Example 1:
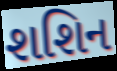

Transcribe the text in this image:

શશિન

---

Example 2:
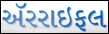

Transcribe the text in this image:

ઍરરાઇફલ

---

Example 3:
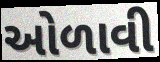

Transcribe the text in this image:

ઓળાવી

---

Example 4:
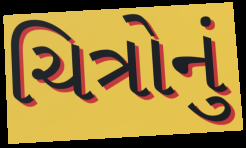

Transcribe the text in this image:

ચિત્રોનું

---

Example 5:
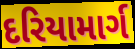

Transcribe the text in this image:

દરિયામાર્ગ